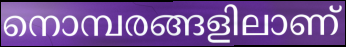
നൊമ്പരങ്ങളിലാണ്